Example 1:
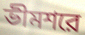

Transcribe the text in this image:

ভীমশরে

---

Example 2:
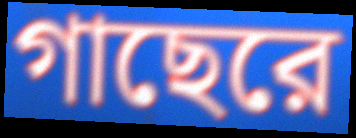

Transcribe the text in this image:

গাছেরে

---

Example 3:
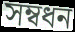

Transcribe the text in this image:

সম্বধন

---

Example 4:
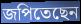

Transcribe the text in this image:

জপিতেছেন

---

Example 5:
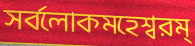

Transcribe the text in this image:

সর্বলোকমহেশ্বরম্